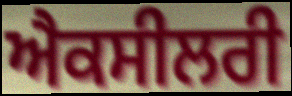
ਐਕਸੀਲਰੀ